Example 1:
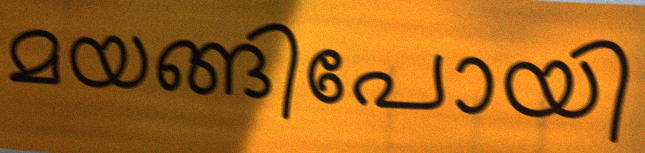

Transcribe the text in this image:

മയങ്ങിപോയി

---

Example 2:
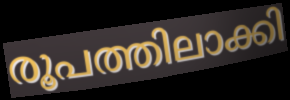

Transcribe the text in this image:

രൂപത്തിലാക്കി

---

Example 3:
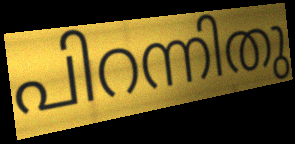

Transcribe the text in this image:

പിറന്നിതു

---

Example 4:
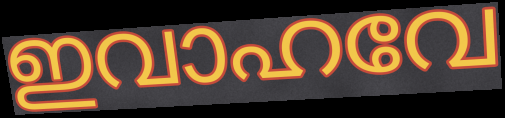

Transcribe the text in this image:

ഇവാഹവേ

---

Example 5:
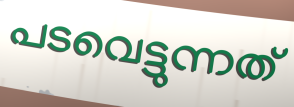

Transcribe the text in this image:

പടവെട്ടുന്നത്